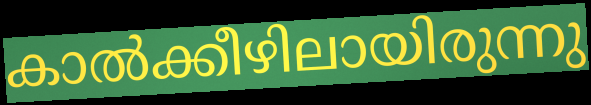
കാൽക്കീഴിലായിരുന്നു